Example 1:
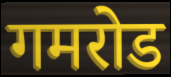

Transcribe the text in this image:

गमरोड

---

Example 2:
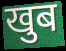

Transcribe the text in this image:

खुब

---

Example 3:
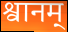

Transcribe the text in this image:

श्वानम्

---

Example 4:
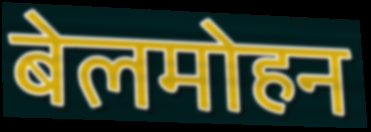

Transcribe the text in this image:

बेलमोहन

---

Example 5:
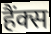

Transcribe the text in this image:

हैंक्‍स